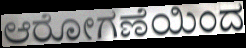
ಆರೋಗಣೆಯಿಂದ